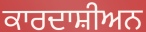
ਕਾਰਦਾਸ਼ੀਅਨ